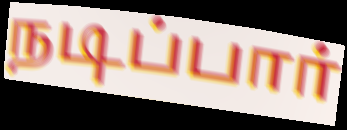
நடிப்பார்